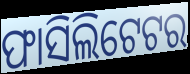
ଫାସିଲିଟେଟର